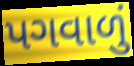
પગવાળું